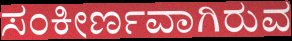
ಸಂಕೀರ್ಣವಾಗಿರುವ